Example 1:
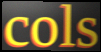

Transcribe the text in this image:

cols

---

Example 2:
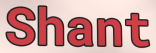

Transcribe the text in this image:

Shant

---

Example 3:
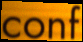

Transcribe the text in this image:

conf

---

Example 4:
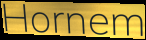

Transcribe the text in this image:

Hornem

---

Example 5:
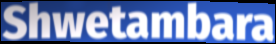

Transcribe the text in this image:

Shwetambara